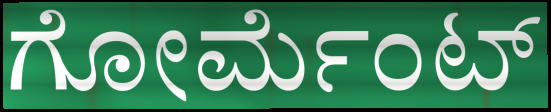
ಗೋರ್ಮೆಂಟ್